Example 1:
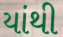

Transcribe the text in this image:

યાંથી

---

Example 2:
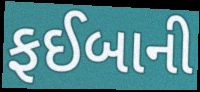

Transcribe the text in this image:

ફઈબાની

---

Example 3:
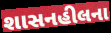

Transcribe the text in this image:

શાસનહીલના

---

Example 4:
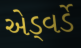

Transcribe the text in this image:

એડ્વર્ડે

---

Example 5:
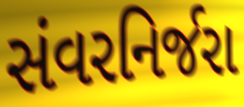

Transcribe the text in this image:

સંવરનિર્જરા